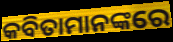
କବିତାମାନଙ୍କରେ